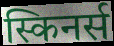
स्किनर्स